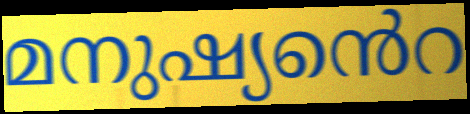
മനുഷ്യൻെറ